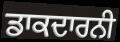
ਡਾਕਦਾਰਨੀ